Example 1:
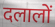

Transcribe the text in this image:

दलालों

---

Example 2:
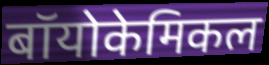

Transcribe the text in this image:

बॉयोकेमिकल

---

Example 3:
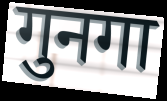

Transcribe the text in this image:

गुनगा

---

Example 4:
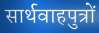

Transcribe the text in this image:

सार्थवाहपुत्रों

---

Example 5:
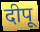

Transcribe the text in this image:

दीपू